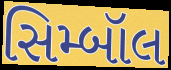
સિમ્બૉલ